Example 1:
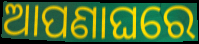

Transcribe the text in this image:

ଆପଣାଘରେ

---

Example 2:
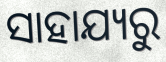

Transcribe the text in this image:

ସାହାଯ୍ୟରୁ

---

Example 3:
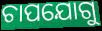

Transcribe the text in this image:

ଚାପଯୋଗୁ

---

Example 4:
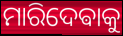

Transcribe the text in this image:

ମାରିଦେଵାକୁ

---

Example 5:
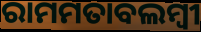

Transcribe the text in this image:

ରାମମତାବଲମ୍ବୀ